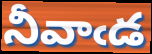
నీవాఁడ